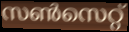
സൺസെറ്റ്